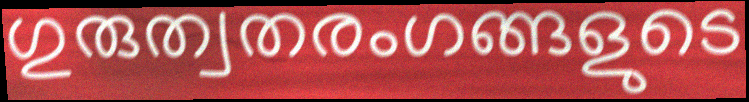
ഗുരുത്വതരംഗങ്ങളുടെ